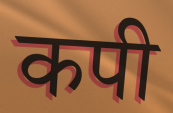
कपी